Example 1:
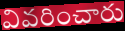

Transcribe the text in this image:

వివరించారు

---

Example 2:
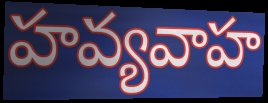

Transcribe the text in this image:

హవ్యవాహ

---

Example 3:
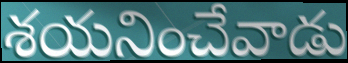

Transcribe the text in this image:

శయనించేవాడు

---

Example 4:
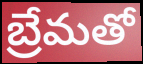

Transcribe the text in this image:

బ్రేమతో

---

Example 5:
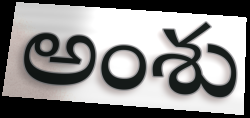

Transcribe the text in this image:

అంశు